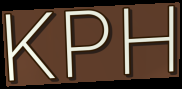
KPH